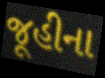
જૂહીના